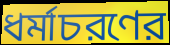
ধর্মাচরণের